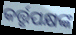
କର୍ତ୍ତୃପକ୍ଷଙ୍କ